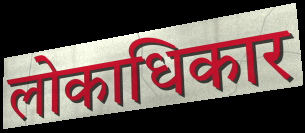
लोकाधिकार